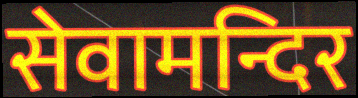
सेवामन्दिर